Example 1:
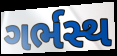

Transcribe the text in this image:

ગર્ભસ્થ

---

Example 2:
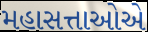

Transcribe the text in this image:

મહાસત્તાઓએ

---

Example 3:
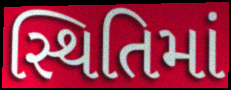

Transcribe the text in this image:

સ્થિતિમાં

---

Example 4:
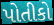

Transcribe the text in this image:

પોતીકો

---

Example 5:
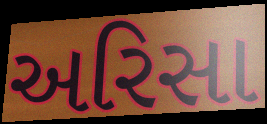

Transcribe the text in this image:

અરિસા